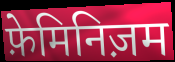
फ़ेमिनिज़म